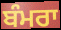
ਬੰਮਰਾ